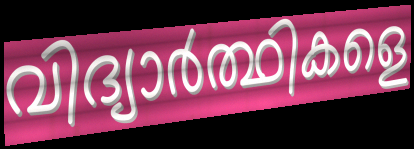
വിദ്യാർത്ഥികളെ